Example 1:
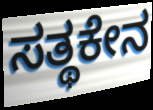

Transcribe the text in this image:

ಸತ್ಥಕೇನ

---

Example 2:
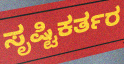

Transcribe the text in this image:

ಸೃಷ್ಟಿಕರ್ತರ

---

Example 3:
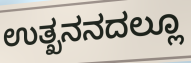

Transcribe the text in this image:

ಉತ್ಖನನದಲ್ಲೂ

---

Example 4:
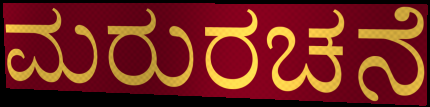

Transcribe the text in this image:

ಮರುರಚನೆ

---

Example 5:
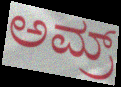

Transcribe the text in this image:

ಅಮ್ರ್